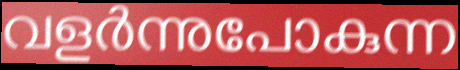
വളർന്നുപോകുന്ന